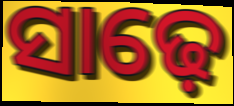
ସାଢ଼େ